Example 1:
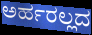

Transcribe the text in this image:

ಅರ್ಹರಲ್ಲದ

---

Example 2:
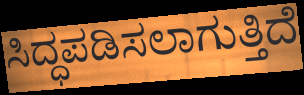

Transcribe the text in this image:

ಸಿದ್ಧಪಡಿಸಲಾಗುತ್ತಿದೆ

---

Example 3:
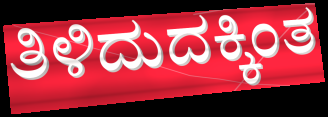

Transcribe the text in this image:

ತಿಳಿದುದಕ್ಕಿಂತ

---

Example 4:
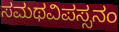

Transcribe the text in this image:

ಸಮಥವಿಪಸ್ಸನಂ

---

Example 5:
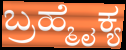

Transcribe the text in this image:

ಬ್ರಹ್ಮೈಕ್ಯ